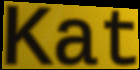
Kat